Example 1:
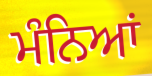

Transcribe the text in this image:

ਮੰਨਿਆਂ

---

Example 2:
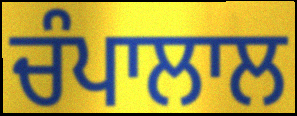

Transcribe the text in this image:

ਚੰਪਾਲਾਲ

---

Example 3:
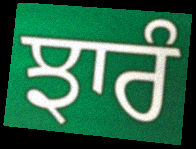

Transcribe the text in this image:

ਝਾਰੰ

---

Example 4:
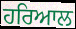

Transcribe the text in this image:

ਹਰਿਆਲ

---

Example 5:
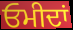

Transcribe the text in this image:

ਓਮੀਦਾਂ